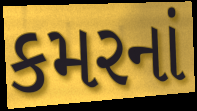
કમરનાં